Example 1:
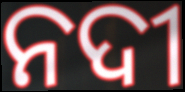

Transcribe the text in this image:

ନଦୀ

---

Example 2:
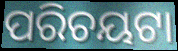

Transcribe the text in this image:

ପରିଚୟଟା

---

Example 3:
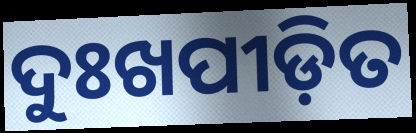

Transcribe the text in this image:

ଦୁଃଖପୀଡ଼ିତ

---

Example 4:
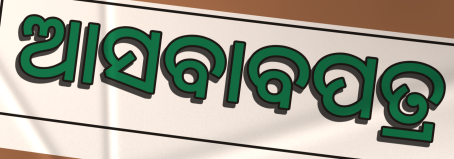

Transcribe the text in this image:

ଆସବାବପତ୍ର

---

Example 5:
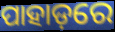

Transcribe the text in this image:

ପାହାଡ଼ରେ